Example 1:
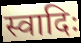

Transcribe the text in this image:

स्वादिः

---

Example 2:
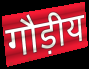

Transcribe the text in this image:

गौड़ीय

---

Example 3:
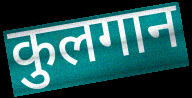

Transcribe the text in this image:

कुलगान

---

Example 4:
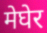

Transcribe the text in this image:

मेघेर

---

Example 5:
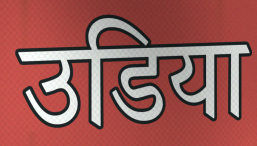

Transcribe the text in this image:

उडिया